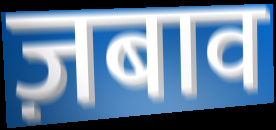
ज़बाव